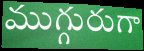
ముగ్గురుగా